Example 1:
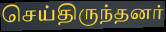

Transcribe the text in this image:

செய்திருந்தனர்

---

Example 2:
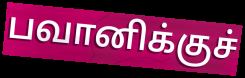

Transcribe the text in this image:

பவானிக்குச்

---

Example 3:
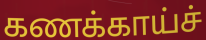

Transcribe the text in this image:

கணக்காய்ச்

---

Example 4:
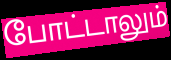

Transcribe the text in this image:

போட்டாலும்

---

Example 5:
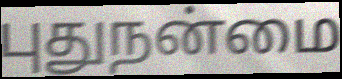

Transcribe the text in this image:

புதுநன்மை